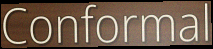
Conformal